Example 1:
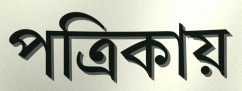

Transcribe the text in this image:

পত্রিকায়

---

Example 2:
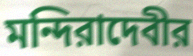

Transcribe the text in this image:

মন্দিরাদেবীর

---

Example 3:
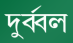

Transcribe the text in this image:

দুর্ব্বল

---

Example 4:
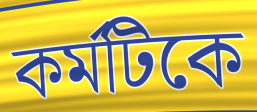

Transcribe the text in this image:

কর্মটিকে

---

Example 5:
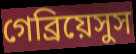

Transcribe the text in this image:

গেব্রিয়েসুস